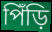
পিঁড়ি